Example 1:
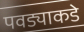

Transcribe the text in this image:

पवड्याकडे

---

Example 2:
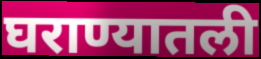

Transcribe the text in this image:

घराण्यातली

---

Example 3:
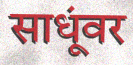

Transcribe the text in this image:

साधूंवर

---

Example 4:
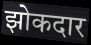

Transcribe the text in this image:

झोकदार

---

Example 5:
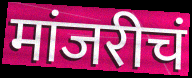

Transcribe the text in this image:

मांजरीचं